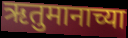
ऋतुमानाच्या